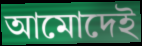
আমোদেই